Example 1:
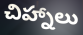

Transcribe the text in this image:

చిహ్నాలు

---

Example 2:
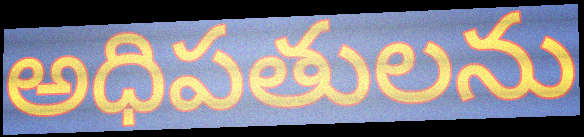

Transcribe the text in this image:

అధిపతులను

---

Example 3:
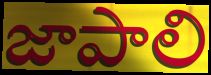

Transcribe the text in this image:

జాపాలి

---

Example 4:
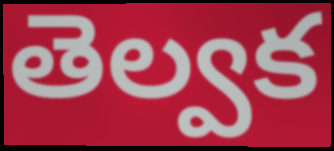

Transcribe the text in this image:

తెల్వక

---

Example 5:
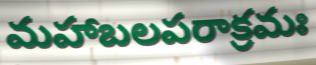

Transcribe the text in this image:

మహాబలపరాక్రమః